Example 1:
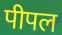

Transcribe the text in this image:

पीपल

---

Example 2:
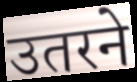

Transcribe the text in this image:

उतरने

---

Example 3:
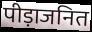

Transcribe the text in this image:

पीड़ाजनित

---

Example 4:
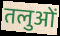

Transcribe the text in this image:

तलुओं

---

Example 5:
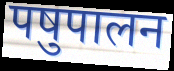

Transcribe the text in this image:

पषुपालन